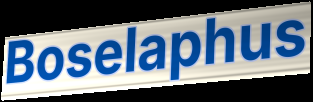
Boselaphus